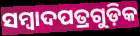
ସମ୍ୱାଦପତ୍ରଗୁଡ଼ିକ